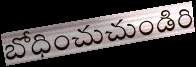
బోధించుచుండిరి